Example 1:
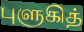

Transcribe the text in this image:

புளுகித்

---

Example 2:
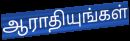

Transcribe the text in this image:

ஆராதியுங்கள்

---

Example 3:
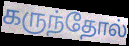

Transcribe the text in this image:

கருந்தோல்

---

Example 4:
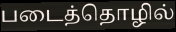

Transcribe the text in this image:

படைத்தொழில்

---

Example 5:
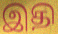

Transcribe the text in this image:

இதி